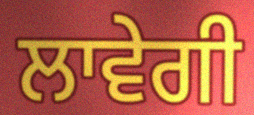
ਲਾਵੇਗੀ